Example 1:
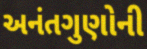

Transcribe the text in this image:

અનંતગુણોની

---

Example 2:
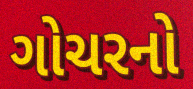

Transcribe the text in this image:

ગોચરનો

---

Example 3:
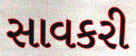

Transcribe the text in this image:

સાવકરી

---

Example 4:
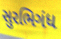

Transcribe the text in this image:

સુરભિગંધ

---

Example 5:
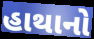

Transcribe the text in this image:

હાથાનો